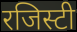
रजिस्टी